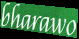
bharawo